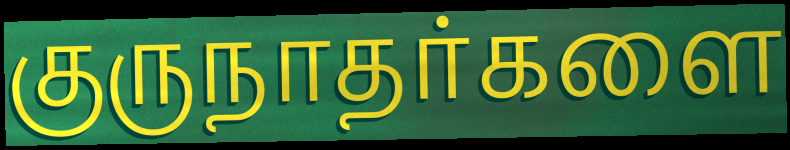
குருநாதர்களை